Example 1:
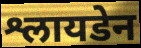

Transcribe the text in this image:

श्लायडेन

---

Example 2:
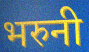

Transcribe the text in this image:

भरुनी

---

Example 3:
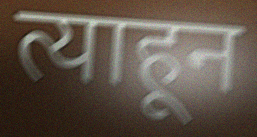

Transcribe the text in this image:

त्याहून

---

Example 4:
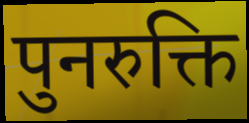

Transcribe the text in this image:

पुनरुक्ति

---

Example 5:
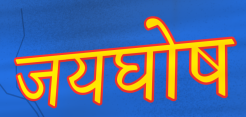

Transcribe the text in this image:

जयघोष